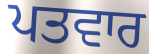
ਪਤਵਾਰ